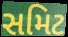
સમિટ